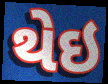
થેઇ